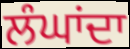
ਲੰਘਾਂਦਾ